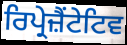
ਰਿਪ੍ਰੇਜ਼ੈਂਟੇਟਿਵ